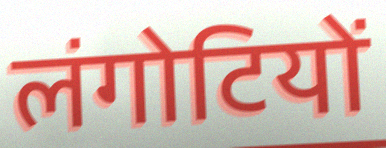
लंगोटियों